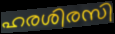
ഹരശിരസി